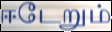
ஈடேறும்